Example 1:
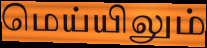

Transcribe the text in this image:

மெய்யிலும்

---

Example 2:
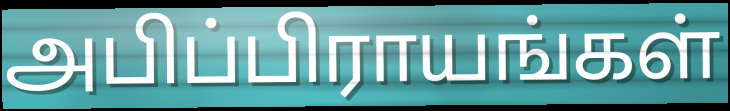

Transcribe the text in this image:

அபிப்பிராயங்கள்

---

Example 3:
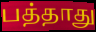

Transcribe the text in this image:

பத்தாது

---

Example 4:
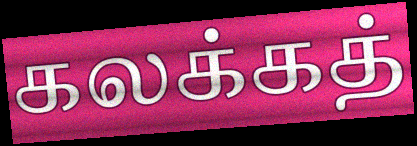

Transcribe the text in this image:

கலக்கத்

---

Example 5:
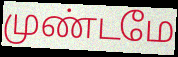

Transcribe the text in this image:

முண்டமே